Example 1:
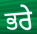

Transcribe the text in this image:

ਭਰੇ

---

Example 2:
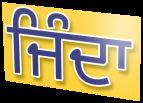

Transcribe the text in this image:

ਜਿੰਦਾ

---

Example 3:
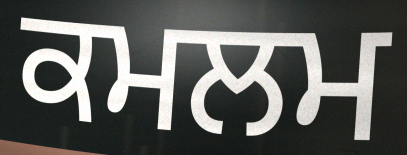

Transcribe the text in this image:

ਕਮਲਮ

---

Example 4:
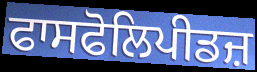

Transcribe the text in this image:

ਫਾਸਫੋਲਿਪੀਡਜ਼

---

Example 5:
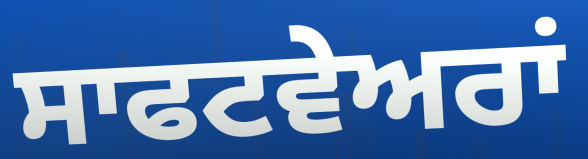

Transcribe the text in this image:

ਸਾਫਟਵੇਅਰਾਂ